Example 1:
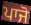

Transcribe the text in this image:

ਪਾਜੋ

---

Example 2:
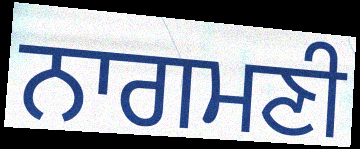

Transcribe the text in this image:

ਨਾਗਮਣੀ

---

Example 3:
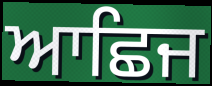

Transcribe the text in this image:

ਆਛਿਜ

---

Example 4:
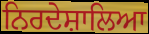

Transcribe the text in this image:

ਨਿਰਦੇਸ਼ਾਲਿਆ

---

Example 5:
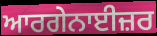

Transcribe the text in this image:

ਆਰਗੇਨਾਈਜ਼ਰ